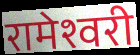
रामेश्वरी